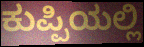
ಕುಪ್ಪಿಯಲ್ಲಿ